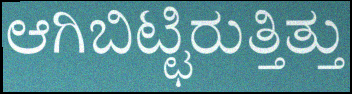
ಆಗಿಬಿಟ್ಟಿರುತ್ತಿತ್ತು